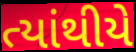
ત્યાંથીયે